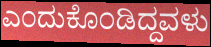
ಎಂದುಕೊಂಡಿದ್ದವಳು